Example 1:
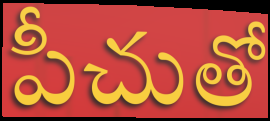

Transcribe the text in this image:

పీచుతో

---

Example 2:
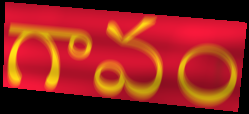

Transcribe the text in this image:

గావం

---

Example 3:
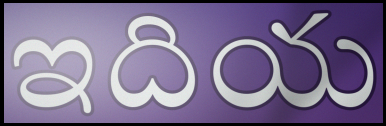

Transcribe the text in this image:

ఇదియ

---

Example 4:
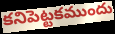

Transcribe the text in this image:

కనిపెట్టకముందు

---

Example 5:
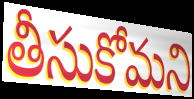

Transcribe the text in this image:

తీసుకోమని